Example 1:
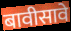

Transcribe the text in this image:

बावीसावे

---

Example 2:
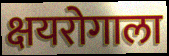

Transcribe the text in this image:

क्षयरोगाला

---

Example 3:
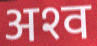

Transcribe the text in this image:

अश्व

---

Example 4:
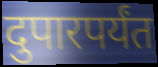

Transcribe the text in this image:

दुपारपर्यंत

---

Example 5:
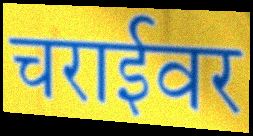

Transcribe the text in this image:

चराईवर